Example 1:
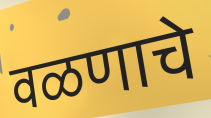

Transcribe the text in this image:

वळणाचे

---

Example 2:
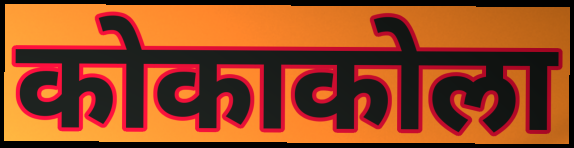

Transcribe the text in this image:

कोकाकोला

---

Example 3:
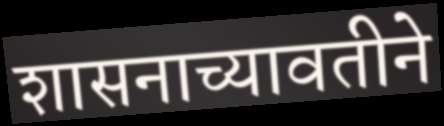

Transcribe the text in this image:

शासनाच्यावतीने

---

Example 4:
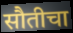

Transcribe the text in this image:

सौतीचा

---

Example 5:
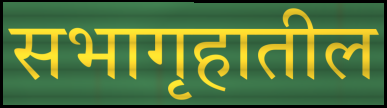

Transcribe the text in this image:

सभागृहातील